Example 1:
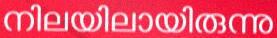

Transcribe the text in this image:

നിലയിലായിരുന്നു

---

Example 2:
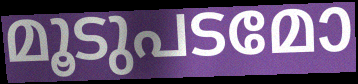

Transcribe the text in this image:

മൂടുപടമോ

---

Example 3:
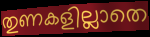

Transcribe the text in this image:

തുണകളില്ലാതെ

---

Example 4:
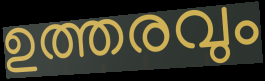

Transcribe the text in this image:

ഉത്തരവും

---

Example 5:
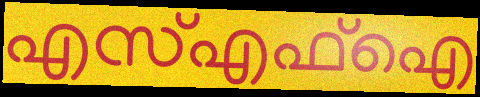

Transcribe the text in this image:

എസ്എഫ്ഐ